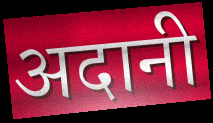
अदानी